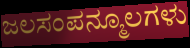
ಜಲಸಂಪನ್ಮೂಲಗಳು